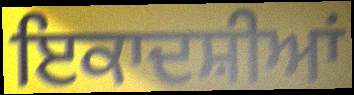
ਇਕਾਦਸ਼ੀਆਂ